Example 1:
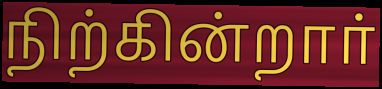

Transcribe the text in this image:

நிற்கின்றார்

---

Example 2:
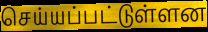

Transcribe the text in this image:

செய்யப்பட்டுள்ளன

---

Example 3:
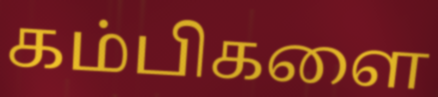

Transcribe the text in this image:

கம்பிகளை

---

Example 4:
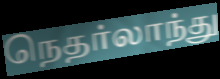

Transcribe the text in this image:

நெதர்லாந்து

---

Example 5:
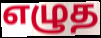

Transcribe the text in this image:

எழுத